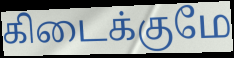
கிடைக்குமே